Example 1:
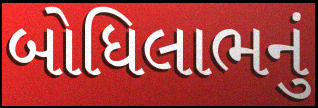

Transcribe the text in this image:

બોધિલાભનું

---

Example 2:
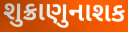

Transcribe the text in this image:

શુક્રાણુનાશક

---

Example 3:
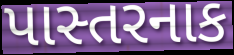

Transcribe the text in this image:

પાસ્તરનાક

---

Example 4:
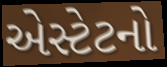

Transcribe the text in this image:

એસ્ટેટનો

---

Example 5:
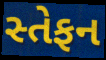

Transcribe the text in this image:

સ્તેફન